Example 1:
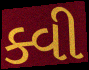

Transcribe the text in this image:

ક્વી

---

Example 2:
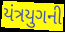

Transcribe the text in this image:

યંત્રયુગની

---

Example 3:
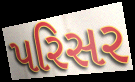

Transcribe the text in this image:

પરિસર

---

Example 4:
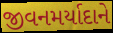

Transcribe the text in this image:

જીવનમર્યાદાને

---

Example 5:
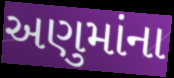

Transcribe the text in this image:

અણુમાંના